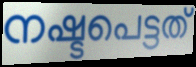
നഷ്ടപെട്ടത്